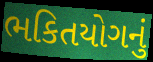
ભકિતયોગનું